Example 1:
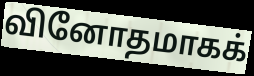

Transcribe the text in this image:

வினோதமாகக்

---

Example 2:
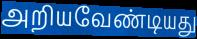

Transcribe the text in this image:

அறியவேண்டியது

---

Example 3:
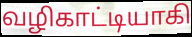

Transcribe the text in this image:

வழிகாட்டியாகி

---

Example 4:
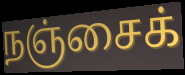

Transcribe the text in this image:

நஞ்சைக்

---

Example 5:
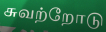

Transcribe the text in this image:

சுவற்றோடு